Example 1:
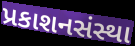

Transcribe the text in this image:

પ્રકાશનસંસ્થા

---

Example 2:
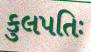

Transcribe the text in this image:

કુલપતિઃ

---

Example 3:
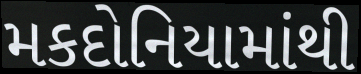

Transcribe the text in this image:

મકદોનિયામાંથી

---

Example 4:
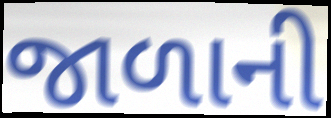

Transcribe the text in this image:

જાળાની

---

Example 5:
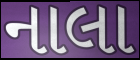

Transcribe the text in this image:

નાલા